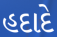
હદાદે